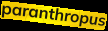
paranthropus